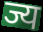
ज्य